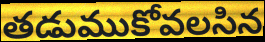
తడుముకోవలసిన